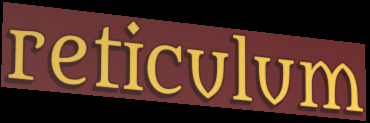
reticulum